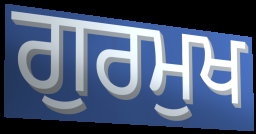
ਗੁਰਮੁਖ